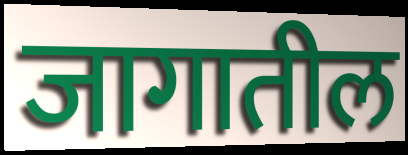
जागातील